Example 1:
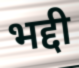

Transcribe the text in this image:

भद्दी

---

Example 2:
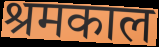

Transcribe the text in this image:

श्रमकाल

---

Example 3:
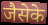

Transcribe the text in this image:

जैसेके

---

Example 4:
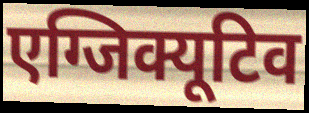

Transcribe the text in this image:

एग्जिक्यूटिव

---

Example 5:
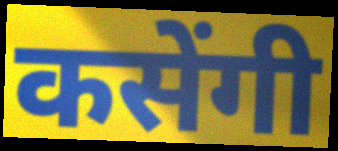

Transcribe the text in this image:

कसेंगी